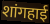
शांगहाई